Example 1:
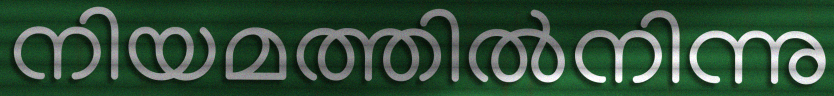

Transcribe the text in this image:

നിയമത്തിൽനിന്നു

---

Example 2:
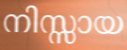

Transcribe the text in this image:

നിസ്സായ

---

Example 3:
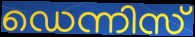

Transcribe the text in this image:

ഡെന്നിസ്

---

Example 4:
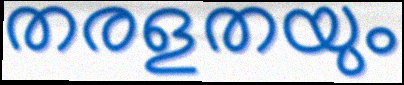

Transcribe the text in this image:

തരളതയും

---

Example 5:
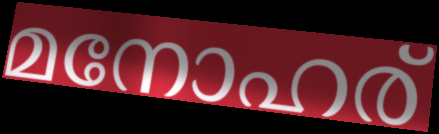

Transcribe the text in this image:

മനോഹര്